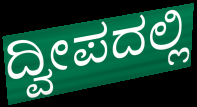
ದ್ವೀಪದಲ್ಲಿ